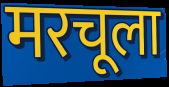
मरचूला